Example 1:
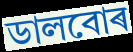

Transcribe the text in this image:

ডালবোৰ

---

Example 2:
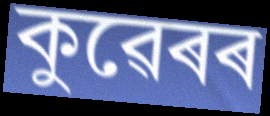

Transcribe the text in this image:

কুৱেৰৰ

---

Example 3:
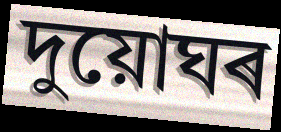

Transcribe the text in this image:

দুয়োঘৰ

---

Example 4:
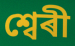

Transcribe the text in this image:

শ্বেৰী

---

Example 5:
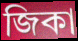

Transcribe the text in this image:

জিকা